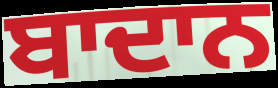
ਬਾਦਾਨ